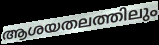
ആശയതലത്തിലും